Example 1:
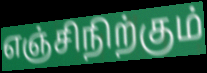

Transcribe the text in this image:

எஞ்சிநிற்கும்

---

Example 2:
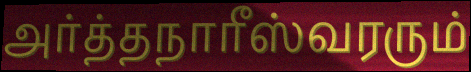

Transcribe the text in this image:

அர்த்தநாரீஸ்வரரும்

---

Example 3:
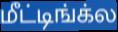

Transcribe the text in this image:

மீட்டிங்க்ல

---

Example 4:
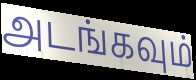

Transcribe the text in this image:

அடங்கவும்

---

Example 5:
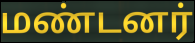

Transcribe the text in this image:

மண்டனர்